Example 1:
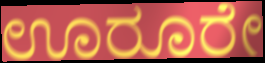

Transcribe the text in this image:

ಊರೂರೇ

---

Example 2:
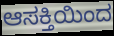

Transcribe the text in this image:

ಆಸಕ್ತಿಯಿಂದ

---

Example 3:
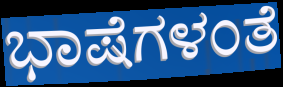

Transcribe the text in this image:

ಭಾಷೆಗಳಂತೆ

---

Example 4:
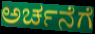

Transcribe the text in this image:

ಅರ್ಚನೆಗೆ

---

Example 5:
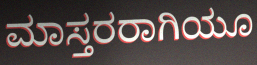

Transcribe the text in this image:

ಮಾಸ್ತರರಾಗಿಯೂ